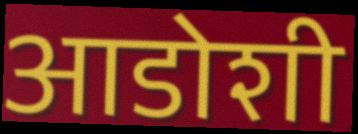
आडोशी